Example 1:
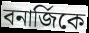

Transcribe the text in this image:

বনার্জিকে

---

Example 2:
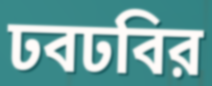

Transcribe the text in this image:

ঢবঢবির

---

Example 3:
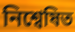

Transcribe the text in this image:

নিশ্বেষিত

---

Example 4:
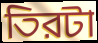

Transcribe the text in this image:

তিরটা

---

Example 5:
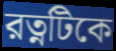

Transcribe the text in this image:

রত্নটিকে